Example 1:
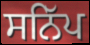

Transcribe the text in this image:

ਸਨਿੱਪ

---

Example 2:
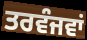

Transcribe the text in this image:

ਤਰਵੰਜਵਾਂ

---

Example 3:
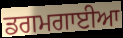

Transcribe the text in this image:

ਡਗਮਗਾਈਆ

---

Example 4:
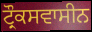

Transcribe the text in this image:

ਟ੍ਰੌਕਸਵਾਸੀਨ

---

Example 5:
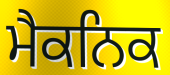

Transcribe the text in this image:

ਮੈਕਨਿਕ